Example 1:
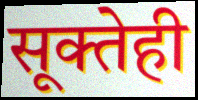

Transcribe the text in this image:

सूक्तेही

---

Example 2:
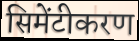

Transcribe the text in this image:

सिमेंटीकरण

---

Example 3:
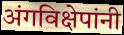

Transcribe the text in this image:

अंगविक्षेपांनी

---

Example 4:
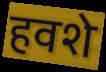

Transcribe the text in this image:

हवशे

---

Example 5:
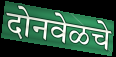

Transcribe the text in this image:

दोनवेळचे